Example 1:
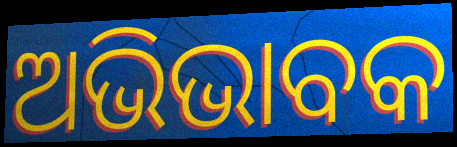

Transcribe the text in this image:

ଅଭିଭାବକ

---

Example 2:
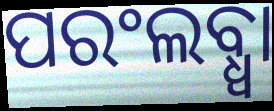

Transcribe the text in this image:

ପରଂଲବ୍ଧ୍ଵା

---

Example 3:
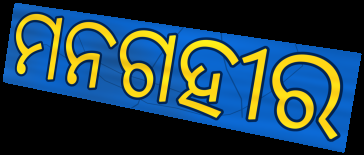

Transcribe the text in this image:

ମନଗହୀର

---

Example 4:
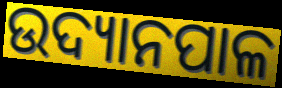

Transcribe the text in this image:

ଉଦ୍ୟାନପାଳ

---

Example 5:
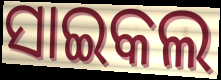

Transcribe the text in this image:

ସାଇକଲ